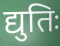
द्युतिः